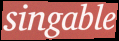
singable